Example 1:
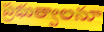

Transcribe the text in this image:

ప్రభుత్వాలనూ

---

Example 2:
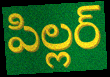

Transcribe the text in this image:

పిల్లర్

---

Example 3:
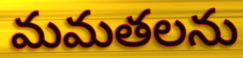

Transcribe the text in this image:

మమతలను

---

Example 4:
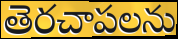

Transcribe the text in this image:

తెరచాపలను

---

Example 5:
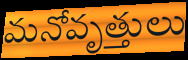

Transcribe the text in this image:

మనోవృత్తులు